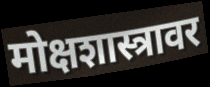
मोक्षशास्त्रावर